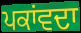
ਪਕਾਂਵਦਾ